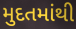
મુદતમાંથી